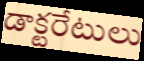
డాక్టరేటులు